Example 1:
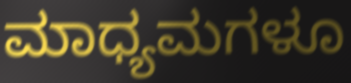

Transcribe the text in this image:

ಮಾಧ್ಯಮಗಳೂ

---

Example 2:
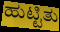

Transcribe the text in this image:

ಹುಟ್ಟಿತು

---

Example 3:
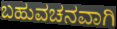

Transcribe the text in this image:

ಬಹುವಚನವಾಗಿ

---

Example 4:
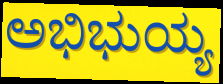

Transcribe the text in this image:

ಅಭಿಭುಯ್ಯ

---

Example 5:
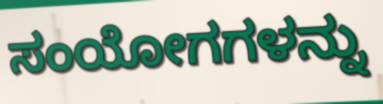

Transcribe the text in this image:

ಸಂಯೋಗಗಳನ್ನು